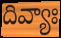
దివ్యాః